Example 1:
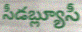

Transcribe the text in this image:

సీడబ్ల్యూసీ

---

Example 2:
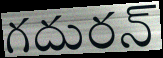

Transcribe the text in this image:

గదురన్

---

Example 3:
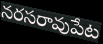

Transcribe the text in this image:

నరసరావుపేట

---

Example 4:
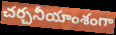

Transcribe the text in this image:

చర్చనీయాంశంగా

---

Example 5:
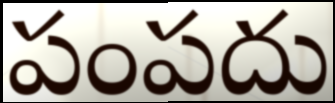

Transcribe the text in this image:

పంపదు